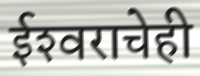
ईश्वराचेही